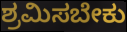
ಶ್ರಮಿಸಬೇಕು